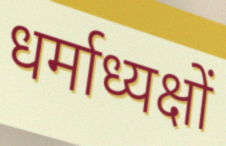
धर्माध्यक्षों